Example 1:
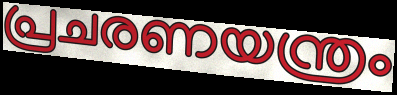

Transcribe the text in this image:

പ്രചരണയന്ത്രം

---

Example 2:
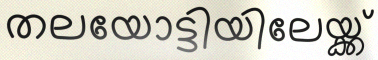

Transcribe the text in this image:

തലയോട്ടിയിലേയ്ക്ക്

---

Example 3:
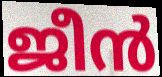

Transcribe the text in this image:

ജീൻ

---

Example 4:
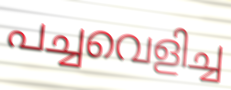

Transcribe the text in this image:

പച്ചവെളിച്ച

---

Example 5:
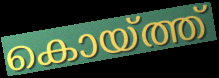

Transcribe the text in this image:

കൊയ്ത്ത്